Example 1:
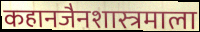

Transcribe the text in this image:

कहानजैनशास्त्रमाला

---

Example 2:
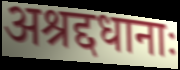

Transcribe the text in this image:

अश्रद्दधानाः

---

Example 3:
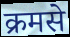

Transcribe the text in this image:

क्रमसे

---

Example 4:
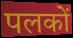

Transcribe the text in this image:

पलकों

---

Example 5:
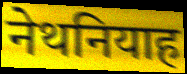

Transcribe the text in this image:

नेथनियाह